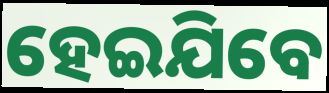
ହେଇଯିବେ